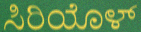
ಸಿರಿಯೊಳ್